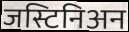
जस्टिनिअन